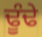
ਢੂੰਢੇ